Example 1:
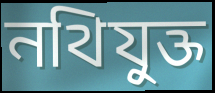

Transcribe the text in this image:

নথিযুক্ত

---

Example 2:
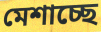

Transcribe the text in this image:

মেশাচ্ছে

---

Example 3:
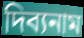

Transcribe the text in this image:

দিব্যনাম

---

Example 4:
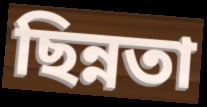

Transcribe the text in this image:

ছিন্নতা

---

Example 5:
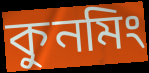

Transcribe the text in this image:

কুনমিং